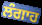
ਲੰਗਾਹ